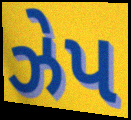
ઝેપ